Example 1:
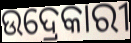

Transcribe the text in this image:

ଉଦ୍ରେକାରୀ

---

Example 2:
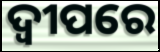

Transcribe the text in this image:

ଦ୍ୱୀପରେ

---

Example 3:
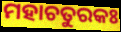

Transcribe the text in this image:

ମହାଚତୁରକଃ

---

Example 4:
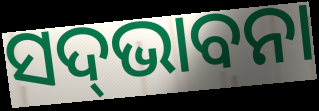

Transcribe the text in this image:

ସଦ୍‌ଭାବନା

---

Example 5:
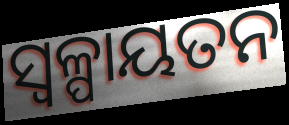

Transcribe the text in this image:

ସ୍ୱଳ୍ପାୟତନ